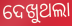
ଦେଖୁଥଲା